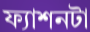
ফ্যাশনটা